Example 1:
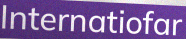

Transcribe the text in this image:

Internatiofar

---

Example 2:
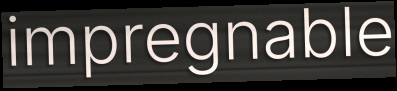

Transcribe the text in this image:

impregnable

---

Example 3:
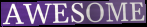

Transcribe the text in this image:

AWESOME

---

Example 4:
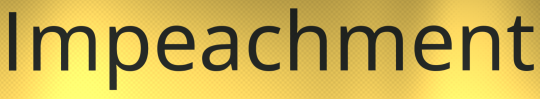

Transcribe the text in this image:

Impeachment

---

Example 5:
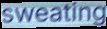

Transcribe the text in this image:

sweating